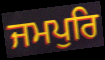
ਜਮਪੁਰਿ